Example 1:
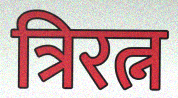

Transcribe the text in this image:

त्रिरत्न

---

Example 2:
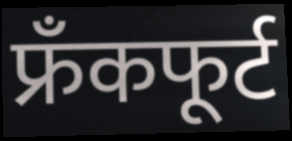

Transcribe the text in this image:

फ्रँकफूर्ट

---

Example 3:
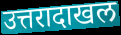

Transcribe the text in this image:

उत्तरादाखल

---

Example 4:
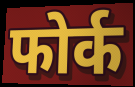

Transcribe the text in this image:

फोर्क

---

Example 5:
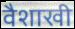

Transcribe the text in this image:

वैशाखी